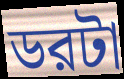
ডরটা